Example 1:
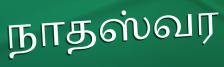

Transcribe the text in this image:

நாதஸ்வர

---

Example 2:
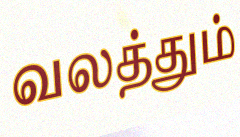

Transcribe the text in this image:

வலத்தும்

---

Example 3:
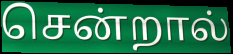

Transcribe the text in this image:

சென்றால்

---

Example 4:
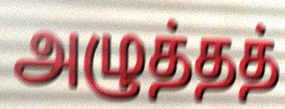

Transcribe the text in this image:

அழுத்தத்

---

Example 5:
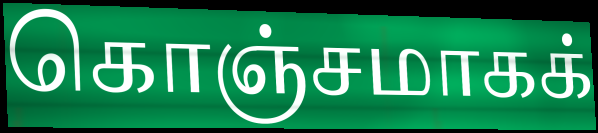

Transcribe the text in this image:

கொஞ்சமாகக்